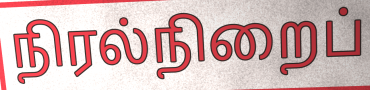
நிரல்நிறைப்